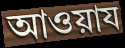
আওয়ায